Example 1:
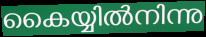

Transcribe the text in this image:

കൈയ്യിൽനിന്നു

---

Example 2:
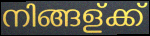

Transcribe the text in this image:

നിങ്ങള്ക്ക്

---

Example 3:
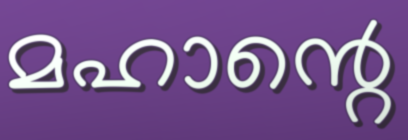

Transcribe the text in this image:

മഹാന്റെ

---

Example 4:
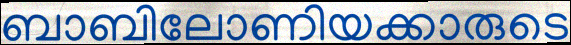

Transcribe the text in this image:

ബാബിലോണിയക്കാരുടെ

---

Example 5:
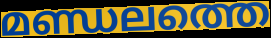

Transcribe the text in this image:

മണ്ഡലത്തെ